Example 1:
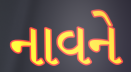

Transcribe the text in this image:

નાવને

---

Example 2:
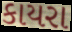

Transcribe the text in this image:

કાયરા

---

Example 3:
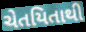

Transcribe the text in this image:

ચેતયિતાથી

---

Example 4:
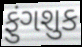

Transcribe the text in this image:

ફુંગશુક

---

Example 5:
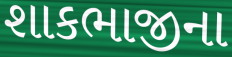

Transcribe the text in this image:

શાકભાજીના